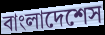
বাংলাদেশেস